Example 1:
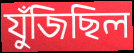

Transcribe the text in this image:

যুঁজিছিল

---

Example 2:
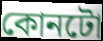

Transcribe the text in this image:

কোনটো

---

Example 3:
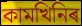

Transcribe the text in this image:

কামখিনিৰ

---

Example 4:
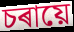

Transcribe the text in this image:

চৰায়ে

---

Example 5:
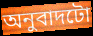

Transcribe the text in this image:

অনুবাদটো